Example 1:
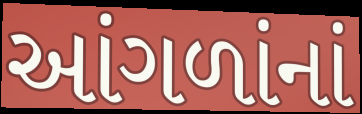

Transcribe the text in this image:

આંગળાંનાં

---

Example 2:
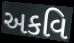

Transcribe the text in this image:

અકવિ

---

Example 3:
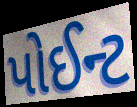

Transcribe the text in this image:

પોઈન્ટ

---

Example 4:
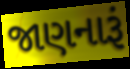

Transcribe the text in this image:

જાણનારૂં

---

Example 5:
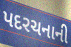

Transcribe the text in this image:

પદરચનાની